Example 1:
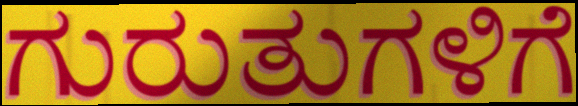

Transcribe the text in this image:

ಗುರುತುಗಳಿಗೆ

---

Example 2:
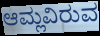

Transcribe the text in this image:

ಆಮ್ಲವಿರುವ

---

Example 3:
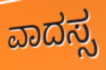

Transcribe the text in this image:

ವಾದಸ್ಸ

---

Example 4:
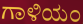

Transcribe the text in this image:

ಗಾಳಿಯಂ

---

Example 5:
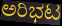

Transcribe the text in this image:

ಅರಿಭಟ